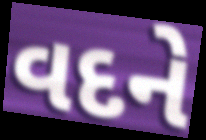
વદને